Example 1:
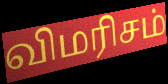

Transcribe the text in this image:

விமரிசம்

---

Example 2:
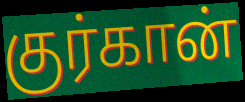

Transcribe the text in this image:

குர்கான்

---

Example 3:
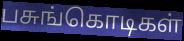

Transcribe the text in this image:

பசுங்கொடிகள்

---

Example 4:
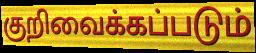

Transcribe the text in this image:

குறிவைக்கப்படும்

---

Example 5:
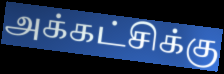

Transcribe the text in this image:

அக்கட்சிக்கு